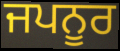
ਜਪਨੂਰ